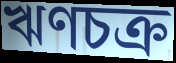
ঋণচক্র